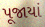
પૂજાયાં